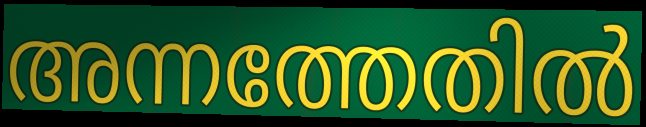
അന്നത്തേതിൽ